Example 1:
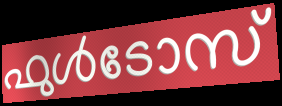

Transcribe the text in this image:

ഫുൾടോസ്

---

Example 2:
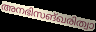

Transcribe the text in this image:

അനഭിസങ്ഖരിത്വാ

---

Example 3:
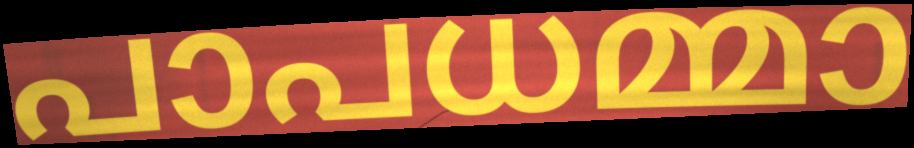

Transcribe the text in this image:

പാപധമ്മാ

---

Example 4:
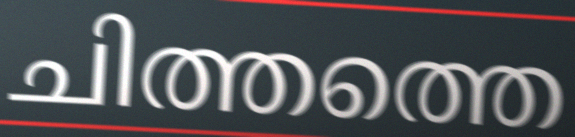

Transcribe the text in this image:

ചിത്തത്തെ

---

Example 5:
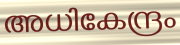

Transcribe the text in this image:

അധികേന്ദ്രം